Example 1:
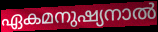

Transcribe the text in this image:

ഏകമനുഷ്യനാൽ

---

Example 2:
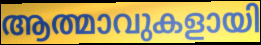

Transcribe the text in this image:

ആത്മാവുകളായി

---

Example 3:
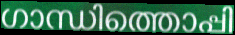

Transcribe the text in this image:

ഗാന്ധിത്തൊപ്പി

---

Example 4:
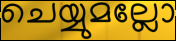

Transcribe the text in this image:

ചെയ്യുമല്ലോ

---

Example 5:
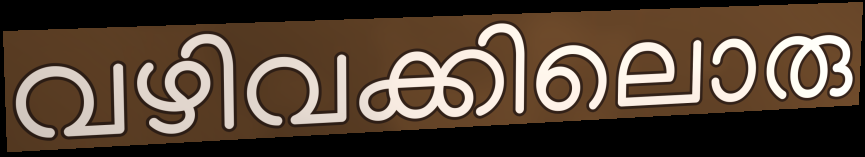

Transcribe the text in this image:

വഴിവക്കിലൊരു